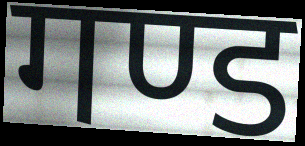
गण्ड